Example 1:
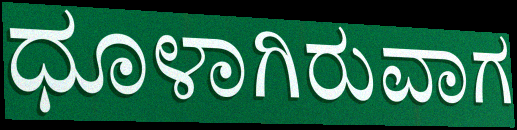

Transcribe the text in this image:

ಧೂಳಾಗಿರುವಾಗ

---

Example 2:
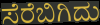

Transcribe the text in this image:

ಸೆರೆಬಿಗಿದು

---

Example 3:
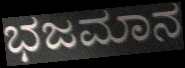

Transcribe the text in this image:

ಭಜಮಾನ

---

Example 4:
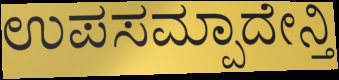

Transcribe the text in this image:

ಉಪಸಮ್ಪಾದೇನ್ತಿ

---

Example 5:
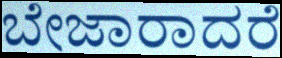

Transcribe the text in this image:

ಬೇಜಾರಾದರೆ